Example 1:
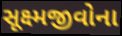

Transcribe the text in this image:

સૂક્ષ્મજીવોના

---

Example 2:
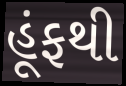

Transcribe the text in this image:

હૂંફથી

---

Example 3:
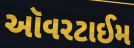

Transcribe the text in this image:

ઑવરટાઈમ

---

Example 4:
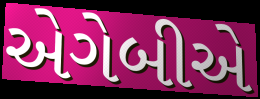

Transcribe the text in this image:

એગેબીએ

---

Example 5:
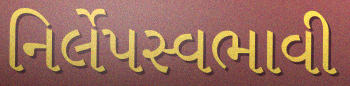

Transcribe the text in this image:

નિર્લેપસ્વભાવી